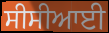
ਸੀਸੀਆਈ